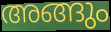
അങ്ങും